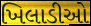
ખિલાડીઓ